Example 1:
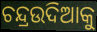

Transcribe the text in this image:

ଚନ୍ଦ୍ରଉଦିଆକୁ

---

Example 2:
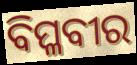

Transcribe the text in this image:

ବିପ୍ଳବୀର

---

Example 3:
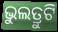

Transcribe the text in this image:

ଭୁଲତ୍ରୁଟି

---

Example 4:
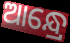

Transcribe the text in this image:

ଆନ୍ଧ୍ରେ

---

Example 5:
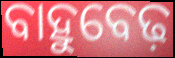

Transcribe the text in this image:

ବାହୁବେଢ଼